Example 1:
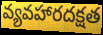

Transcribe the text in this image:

వ్యవహారదక్షత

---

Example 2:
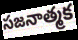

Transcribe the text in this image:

సజనాత్మక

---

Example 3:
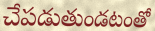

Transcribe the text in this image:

చేపడుతుండటంతో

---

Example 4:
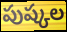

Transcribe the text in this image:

పుష్కల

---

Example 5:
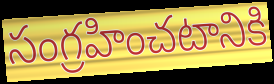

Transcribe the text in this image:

సంగ్రహించటానికి